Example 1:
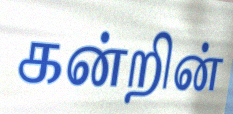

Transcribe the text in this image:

கன்றின்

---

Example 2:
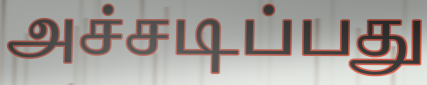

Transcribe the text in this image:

அச்சடிப்பது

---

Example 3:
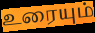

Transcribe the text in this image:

உரையும்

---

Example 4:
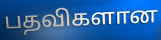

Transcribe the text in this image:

பதவிகளான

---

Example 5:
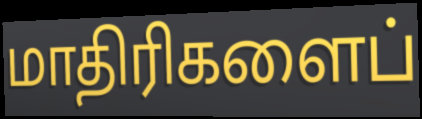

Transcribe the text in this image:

மாதிரிகளைப்